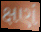
ક્ષણં